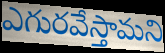
ఎగురవేస్తామని